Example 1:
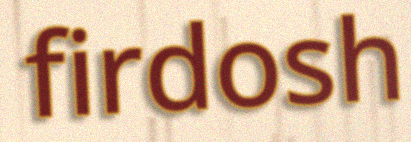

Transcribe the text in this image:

firdosh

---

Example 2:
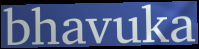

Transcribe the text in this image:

bhavuka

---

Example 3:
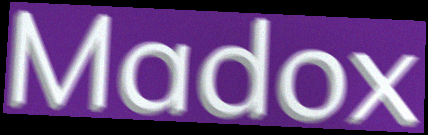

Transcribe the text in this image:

Madox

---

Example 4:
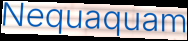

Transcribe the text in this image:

Nequaquam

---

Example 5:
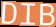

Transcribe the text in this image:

DIB